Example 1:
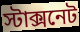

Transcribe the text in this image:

স্টাক্সনেট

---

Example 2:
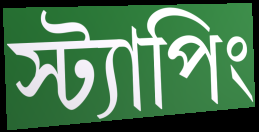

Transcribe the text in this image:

স্ট্যাপিং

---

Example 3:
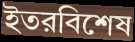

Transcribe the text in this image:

ইতরবিশেষ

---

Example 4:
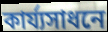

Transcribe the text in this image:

কার্য্যসাধনে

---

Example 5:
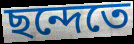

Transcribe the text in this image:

ছন্দেতে